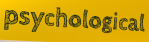
psychological